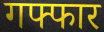
गफ्फार